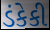
ડંકેકી